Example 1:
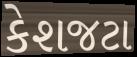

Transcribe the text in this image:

કેશજટા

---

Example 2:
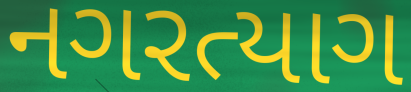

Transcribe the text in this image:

નગરત્યાગ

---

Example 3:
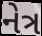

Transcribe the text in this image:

નેત્ર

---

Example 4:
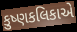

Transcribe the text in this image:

કુષ્ણકલિકાએ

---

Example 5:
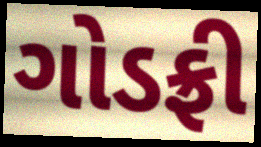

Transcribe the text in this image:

ગોડફ્રી